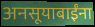
अनसूयाबाईंना